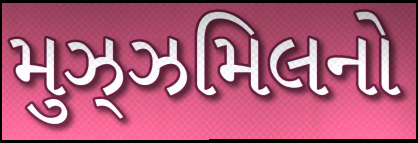
મુઝ્ઝમિલનો